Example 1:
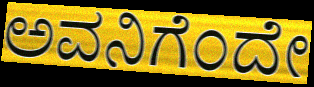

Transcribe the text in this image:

ಅವನಿಗೆಂದೇ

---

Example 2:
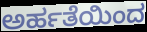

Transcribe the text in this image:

ಅರ್ಹತೆಯಿಂದ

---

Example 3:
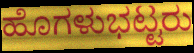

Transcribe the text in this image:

ಹೊಗಳುಭಟ್ಟರು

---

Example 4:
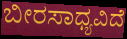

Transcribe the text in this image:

ಬೀರಸಾಧ್ಯವಿದೆ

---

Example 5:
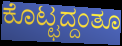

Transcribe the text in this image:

ಕೊಟ್ಟದ್ದಂತೂ